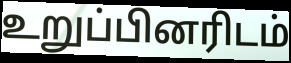
உறுப்பினரிடம்